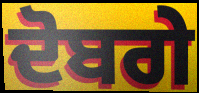
ਦੋਬਗੇ